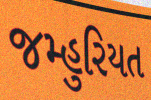
જમ્હુરિયત